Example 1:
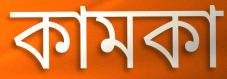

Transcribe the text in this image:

কামকা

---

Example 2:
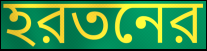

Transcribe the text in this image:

হরতনের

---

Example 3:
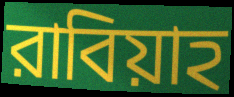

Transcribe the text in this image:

রাবিয়াহ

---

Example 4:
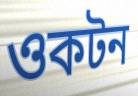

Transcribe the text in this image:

ওকটন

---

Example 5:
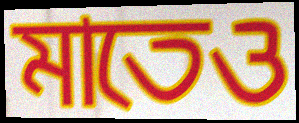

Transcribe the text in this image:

মাতেও